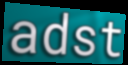
adst